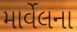
માર્વેલના